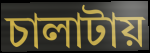
চালাটায়